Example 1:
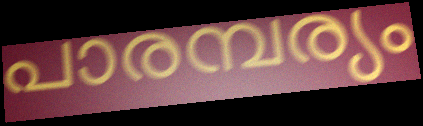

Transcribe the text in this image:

പാരമ്പര്യം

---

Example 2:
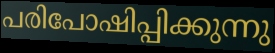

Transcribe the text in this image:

പരിപോഷിപ്പിക്കുന്നു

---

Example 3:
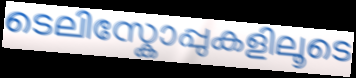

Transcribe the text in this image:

ടെലിസ്കോപ്പുകളിലൂടെ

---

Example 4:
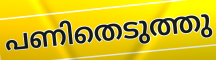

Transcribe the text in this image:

പണിതെടുത്തു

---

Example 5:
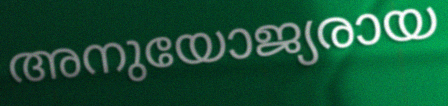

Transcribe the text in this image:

അനുയോജ്യരായ